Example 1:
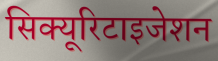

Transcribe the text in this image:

सिक्यूरिटाइजेशन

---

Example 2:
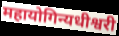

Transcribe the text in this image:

महायोगिन्यधीश्वरी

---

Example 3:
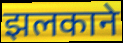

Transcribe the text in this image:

झलकाने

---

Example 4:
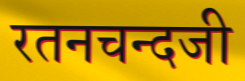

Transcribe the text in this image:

रतनचन्दजी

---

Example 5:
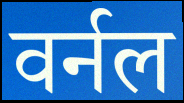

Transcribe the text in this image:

वर्नल